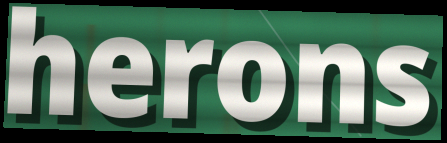
herons